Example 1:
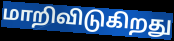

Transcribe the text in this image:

மாறிவிடுகிறது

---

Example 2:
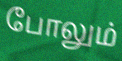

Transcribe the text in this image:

போலும்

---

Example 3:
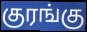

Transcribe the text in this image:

குரங்கு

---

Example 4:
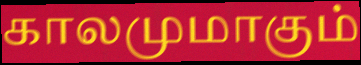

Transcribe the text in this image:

காலமுமாகும்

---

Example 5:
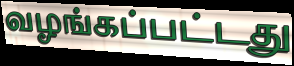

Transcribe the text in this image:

வழங்கப்பட்டது